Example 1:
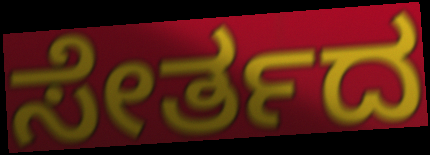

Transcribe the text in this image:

ಸೇರ್ತದ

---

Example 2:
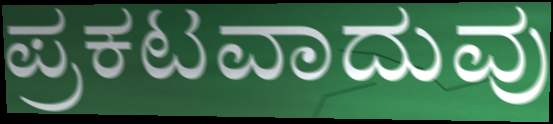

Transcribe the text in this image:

ಪ್ರಕಟವಾದುವು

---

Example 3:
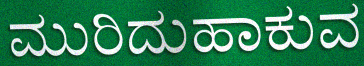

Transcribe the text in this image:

ಮುರಿದುಹಾಕುವ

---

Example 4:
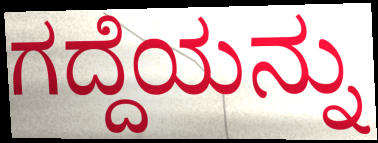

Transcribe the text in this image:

ಗದ್ದೆಯನ್ನು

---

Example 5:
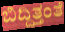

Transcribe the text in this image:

ಬಿದ್ದಿತ್ತಂತೆ